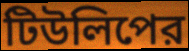
টিউলিপের